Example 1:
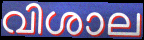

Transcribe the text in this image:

വിശാല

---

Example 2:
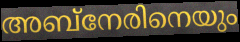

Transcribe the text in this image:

അബ്നേരിനെയും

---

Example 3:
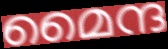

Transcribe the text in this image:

മൈന്ദ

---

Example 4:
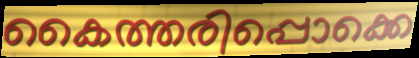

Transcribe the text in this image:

കൈത്തരിപ്പൊക്കെ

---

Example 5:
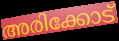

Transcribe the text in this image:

അരിക്കോട്